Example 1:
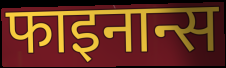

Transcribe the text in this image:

फाइनान्स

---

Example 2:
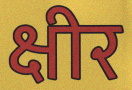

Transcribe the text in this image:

क्षीर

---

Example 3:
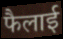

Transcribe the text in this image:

फैलाई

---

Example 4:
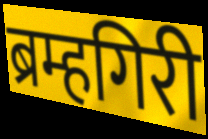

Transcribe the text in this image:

ब्रम्हगिरी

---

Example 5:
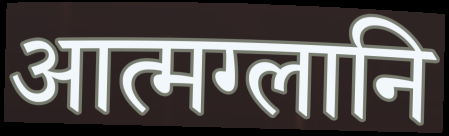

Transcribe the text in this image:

आत्मग्लानि